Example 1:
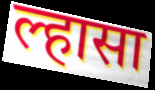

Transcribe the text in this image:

ल्हासा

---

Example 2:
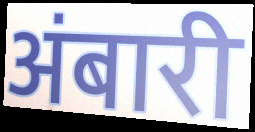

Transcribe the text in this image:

अंबारी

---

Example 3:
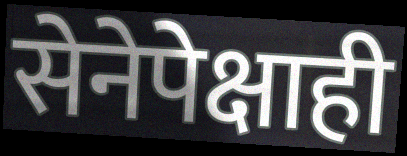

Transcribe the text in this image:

सेनेपेक्षाही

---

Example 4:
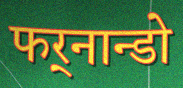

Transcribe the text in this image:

फर्नान्डो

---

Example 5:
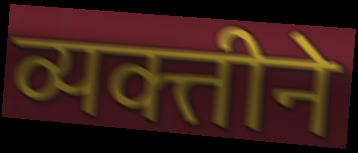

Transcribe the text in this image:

व्यक्तीने